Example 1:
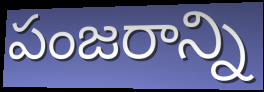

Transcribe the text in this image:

పంజరాన్ని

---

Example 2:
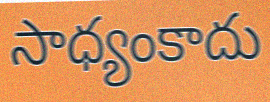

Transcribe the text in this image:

సాధ్యంకాదు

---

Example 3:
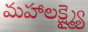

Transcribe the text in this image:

మహాలక్ష్మ్యై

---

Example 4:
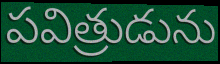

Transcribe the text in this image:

పవిత్రుడును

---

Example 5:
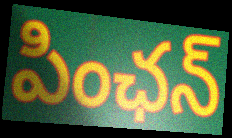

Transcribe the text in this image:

పింఛన్